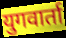
युगवार्ता